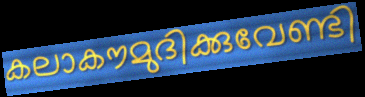
കലാകൗമുദിക്കുവേണ്ടി